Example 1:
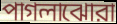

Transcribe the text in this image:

পাগলাঝোরা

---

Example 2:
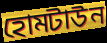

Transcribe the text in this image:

হোমটাউন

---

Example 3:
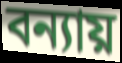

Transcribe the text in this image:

বন্যায়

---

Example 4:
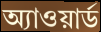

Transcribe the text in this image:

অ্যাওয়ার্ড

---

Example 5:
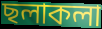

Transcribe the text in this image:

ছলাকলা